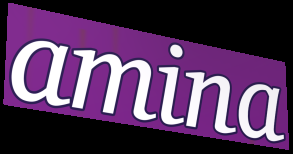
amina